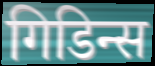
गिडिन्स